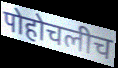
पोहोचलीच